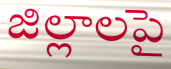
జిల్లాలపై